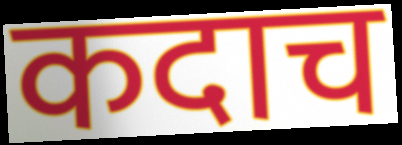
कदाच